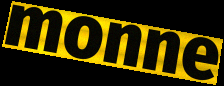
monne